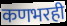
कणभरही